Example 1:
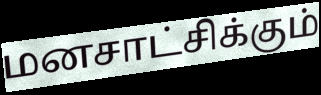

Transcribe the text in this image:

மனசாட்சிக்கும்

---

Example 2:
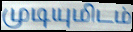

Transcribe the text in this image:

முடியுமிடம்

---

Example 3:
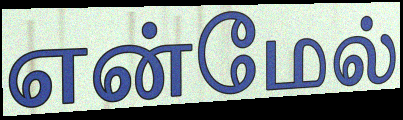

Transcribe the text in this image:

என்மேல்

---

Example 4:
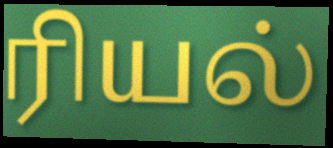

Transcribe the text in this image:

ரியல்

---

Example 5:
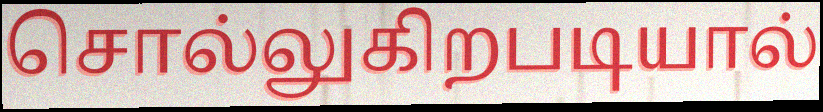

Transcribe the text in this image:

சொல்லுகிறபடியால்